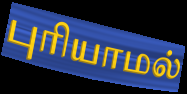
புரியாமல்